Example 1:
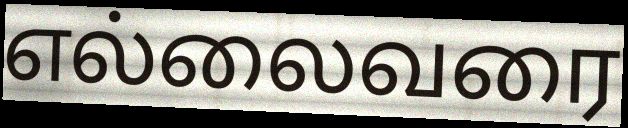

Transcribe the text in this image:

எல்லைவரை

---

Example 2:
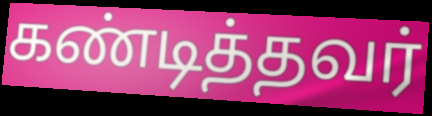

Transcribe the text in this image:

கண்டித்தவர்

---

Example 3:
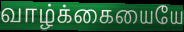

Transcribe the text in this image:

வாழ்க்கையையே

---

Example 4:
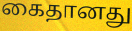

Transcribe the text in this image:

கைதானது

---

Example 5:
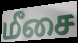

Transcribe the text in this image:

மீசை